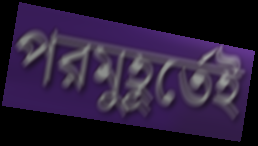
পরমুহূর্তেই